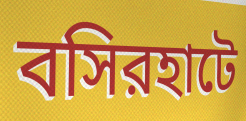
বসিরহাটে